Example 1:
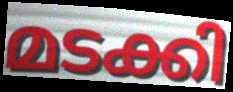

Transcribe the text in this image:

മടക്കി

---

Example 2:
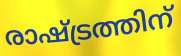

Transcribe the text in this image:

രാഷ്ട്രത്തിന്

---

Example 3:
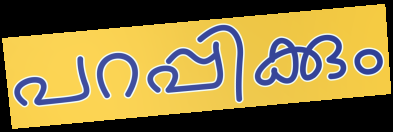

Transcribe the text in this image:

പറപ്പിക്കും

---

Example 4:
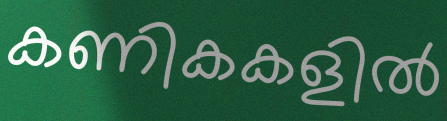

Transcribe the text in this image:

കണികകളിൽ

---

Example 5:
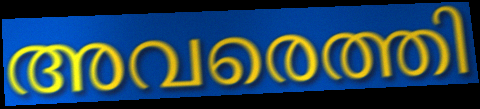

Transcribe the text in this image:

അവരെത്തി